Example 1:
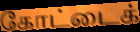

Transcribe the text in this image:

கோட்டைக்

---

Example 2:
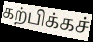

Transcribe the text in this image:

கற்பிக்கச்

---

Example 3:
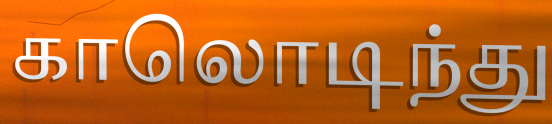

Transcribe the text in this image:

காலொடிந்து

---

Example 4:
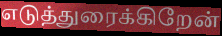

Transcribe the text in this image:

எடுத்துரைக்கிறேன்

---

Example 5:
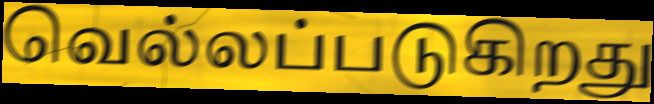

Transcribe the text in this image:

வெல்லப்படுகிறது